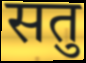
सतु